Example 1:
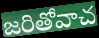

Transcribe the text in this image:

జరితోవాచ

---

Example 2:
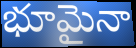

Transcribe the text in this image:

భూమైనా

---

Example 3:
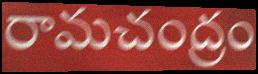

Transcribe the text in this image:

రామచంద్రం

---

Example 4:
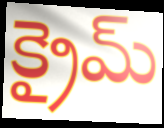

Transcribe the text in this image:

క్రైమ్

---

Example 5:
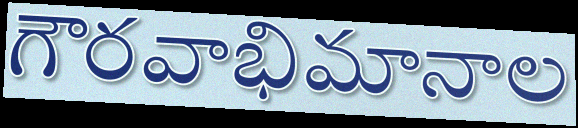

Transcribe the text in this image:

గౌరవాభిమానాల